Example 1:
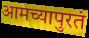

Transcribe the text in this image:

आमच्यापुरतं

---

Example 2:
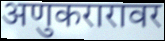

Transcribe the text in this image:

अणुकरारावर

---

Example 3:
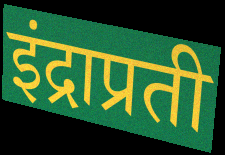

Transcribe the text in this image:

इंद्राप्रती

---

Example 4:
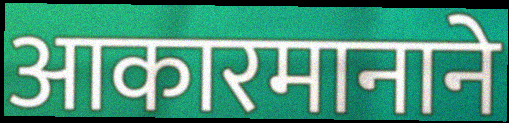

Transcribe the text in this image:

आकारमानाने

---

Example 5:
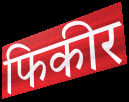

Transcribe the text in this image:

फिकीर